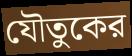
যৌতুকের